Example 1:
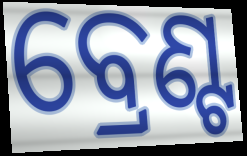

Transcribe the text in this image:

ବ୍ରେଣ୍ଟ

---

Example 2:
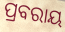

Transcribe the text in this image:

ପ୍ରବରାୟ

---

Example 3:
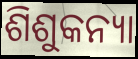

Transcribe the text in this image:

ଶିଶୁକନ୍ଯା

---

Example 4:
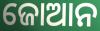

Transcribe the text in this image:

ଜୋଆନ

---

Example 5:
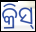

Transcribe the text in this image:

କ୍ରିସ୍